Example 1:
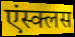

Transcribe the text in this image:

एंस्क्लस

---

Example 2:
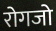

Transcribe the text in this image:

रोगजो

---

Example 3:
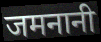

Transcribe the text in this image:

जमनानी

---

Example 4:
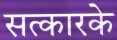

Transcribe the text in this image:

सत्कारके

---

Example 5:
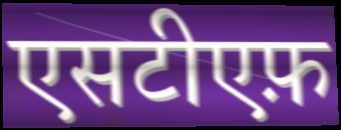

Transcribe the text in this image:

एसटीएफ़